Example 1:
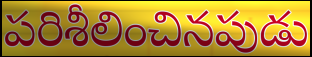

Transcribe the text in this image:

పరిశీలించినపుడు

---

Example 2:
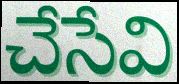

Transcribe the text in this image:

చేసేవి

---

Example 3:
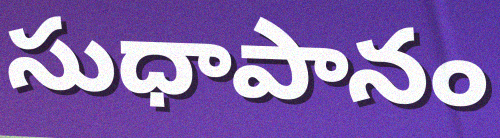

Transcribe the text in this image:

సుధాపానం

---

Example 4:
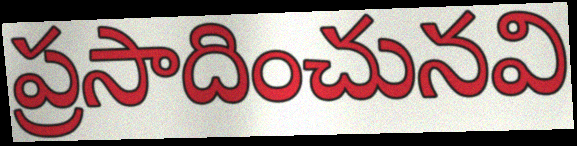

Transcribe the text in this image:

ప్రసాదించునవి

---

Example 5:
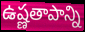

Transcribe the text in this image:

ఉష్ణతాపాన్ని